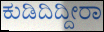
ಕುಡಿದಿದ್ದೀರಾ